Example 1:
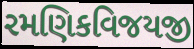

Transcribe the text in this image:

રમણિકવિજયજી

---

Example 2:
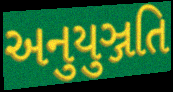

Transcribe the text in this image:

અનુયુઞ્જતિ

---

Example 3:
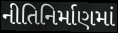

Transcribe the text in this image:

નીતિનિર્માણમાં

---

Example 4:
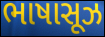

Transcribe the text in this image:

ભાષાસૂઝ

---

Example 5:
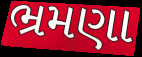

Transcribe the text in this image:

ભ્રમણા